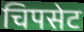
चिपसेट